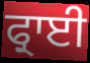
ਫ੍ਰਾਈ